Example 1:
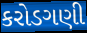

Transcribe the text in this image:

કરોડગણી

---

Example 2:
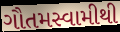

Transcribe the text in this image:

ગૌતમસ્વામીથી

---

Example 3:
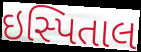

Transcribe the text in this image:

ઇસ્પિતાલ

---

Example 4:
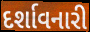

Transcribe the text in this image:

દર્શાવનારી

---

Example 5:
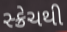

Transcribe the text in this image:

સ્ક્રેચથી